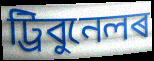
ট্ৰিবুনেলৰ